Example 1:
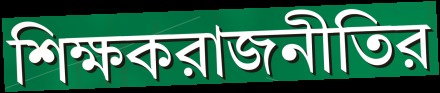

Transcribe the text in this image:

শিক্ষকরাজনীতির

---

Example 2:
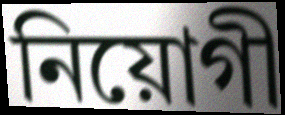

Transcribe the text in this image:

নিয়োগী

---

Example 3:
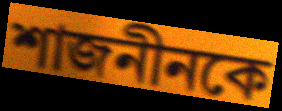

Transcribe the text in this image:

শাজনীনকে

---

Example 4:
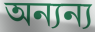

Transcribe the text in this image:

অন্যন্য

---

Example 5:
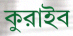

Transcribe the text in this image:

কুরাইব